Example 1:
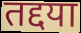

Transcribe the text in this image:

तद्दया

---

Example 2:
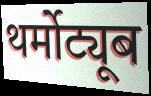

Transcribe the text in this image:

थर्मोट्यूब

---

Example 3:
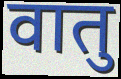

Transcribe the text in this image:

वातु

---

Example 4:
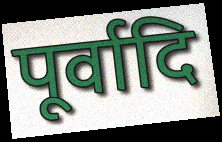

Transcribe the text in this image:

पूर्वादि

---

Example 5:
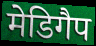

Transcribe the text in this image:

मेडिगैप